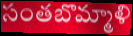
సంతబొమ్మాళి